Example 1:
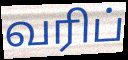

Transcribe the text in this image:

வரிப்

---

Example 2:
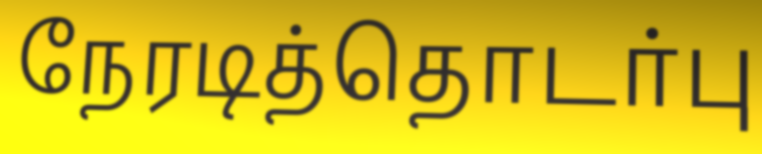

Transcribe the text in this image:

நேரடித்தொடர்பு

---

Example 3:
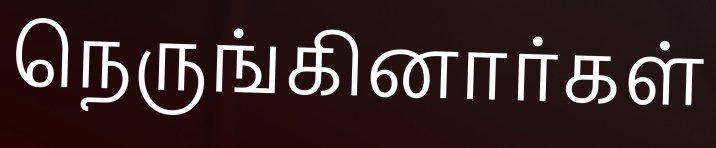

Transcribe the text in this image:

நெருங்கினார்கள்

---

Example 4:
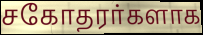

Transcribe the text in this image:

சகோதரர்களாக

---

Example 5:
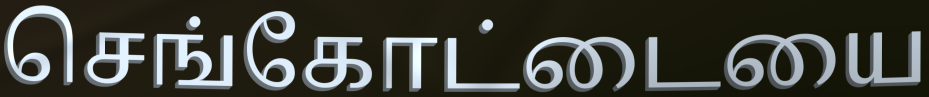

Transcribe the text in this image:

செங்கோட்டையை